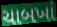
ચાબખાં